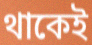
থাকেই